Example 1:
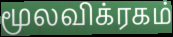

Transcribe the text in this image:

மூலவிக்ரகம்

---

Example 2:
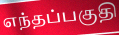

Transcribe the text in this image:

எந்தப்பகுதி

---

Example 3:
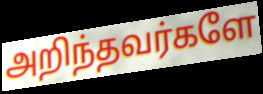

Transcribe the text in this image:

அறிந்தவர்களே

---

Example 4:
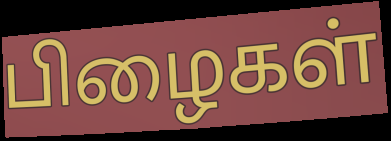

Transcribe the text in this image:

பிழைகள்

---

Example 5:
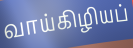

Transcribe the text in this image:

வாய்கிழியப்